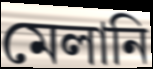
মেলানি